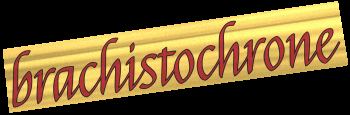
brachistochrone